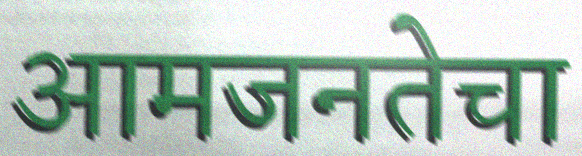
आमजनतेचा